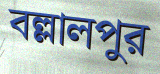
বল্লালপুর